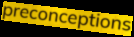
preconceptions